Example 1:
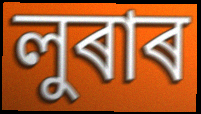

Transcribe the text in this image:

লুৰাৰ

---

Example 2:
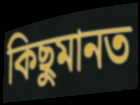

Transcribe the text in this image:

কিছুমানত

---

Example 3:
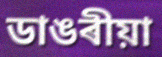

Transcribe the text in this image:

ডাঙৰীয়া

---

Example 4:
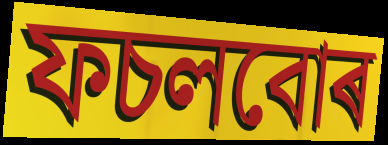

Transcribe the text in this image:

ফচলবোৰ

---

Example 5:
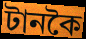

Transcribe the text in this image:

টানকৈ